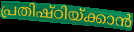
പ്രതിഷ്ഠിയ്ക്കാൻ